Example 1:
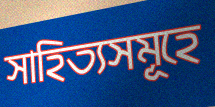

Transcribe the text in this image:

সাহিত্যসমূহে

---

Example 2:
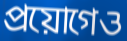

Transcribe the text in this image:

প্ৰয়োগেও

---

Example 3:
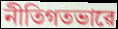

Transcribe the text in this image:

নীতিগতভাৱে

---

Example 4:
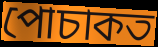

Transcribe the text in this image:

পোচাকত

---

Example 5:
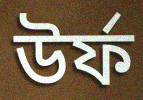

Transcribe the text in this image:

উৰ্ফ